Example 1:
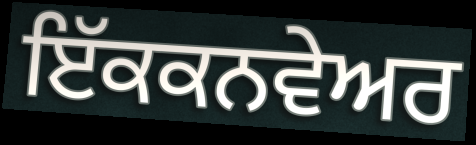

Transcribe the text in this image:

ਇੱਕਕਨਵੇਅਰ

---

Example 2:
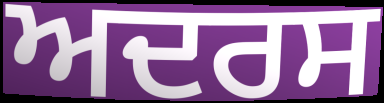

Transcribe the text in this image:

ਅਦਰਸ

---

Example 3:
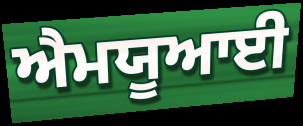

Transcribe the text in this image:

ਐਮਯੂਆਈ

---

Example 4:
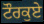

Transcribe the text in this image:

ਟੌਰਕੁਏ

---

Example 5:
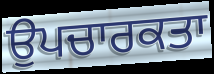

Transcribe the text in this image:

ਉਪਚਾਰਕਤਾ